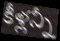
కీళ్లన్నీ